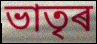
ভাতৃৰ